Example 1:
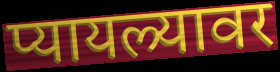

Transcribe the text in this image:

प्यायल्यावर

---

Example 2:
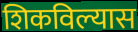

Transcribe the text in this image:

शिकविल्यास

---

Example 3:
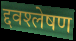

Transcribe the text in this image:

द्दवश्लेषण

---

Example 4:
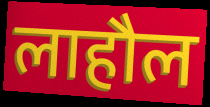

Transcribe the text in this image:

लाहौल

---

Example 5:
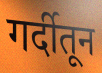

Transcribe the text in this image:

गर्दीतून